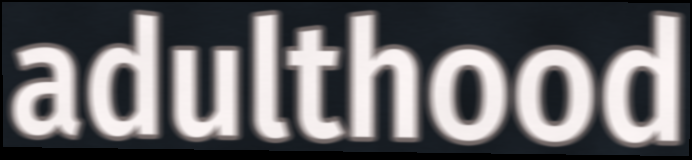
adulthood